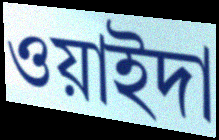
ওয়াইদা